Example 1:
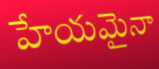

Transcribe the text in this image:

హేయమైనా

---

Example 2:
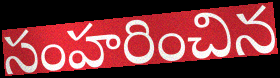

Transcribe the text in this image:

సంహరించిన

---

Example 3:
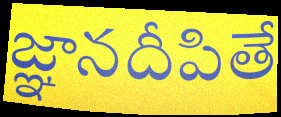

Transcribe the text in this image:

జ్ఞానదీపితే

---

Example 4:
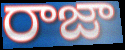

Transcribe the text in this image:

రాజా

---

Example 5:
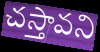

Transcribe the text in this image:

చస్తావని